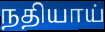
நதியாய்